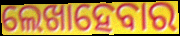
ଲେଖାହେବାର